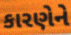
કારણેને